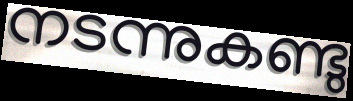
നടന്നുകണ്ടു